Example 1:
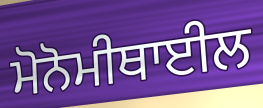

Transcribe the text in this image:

ਮੋਨੋਮੀਥਾਈਲ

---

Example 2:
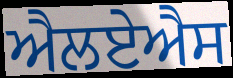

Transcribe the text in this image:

ਐਲਏਐਸ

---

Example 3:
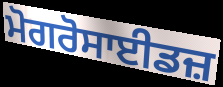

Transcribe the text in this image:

ਮੋਗਰੋਸਾਈਡਜ਼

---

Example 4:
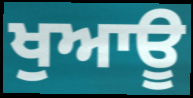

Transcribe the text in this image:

ਖੁਆਊ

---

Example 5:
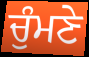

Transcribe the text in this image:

ਚੁੰਮਣੇ